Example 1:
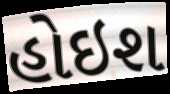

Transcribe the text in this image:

હોઇશ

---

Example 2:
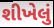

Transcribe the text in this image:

શીખેલું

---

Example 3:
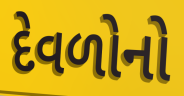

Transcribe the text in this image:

દેવળોનો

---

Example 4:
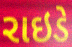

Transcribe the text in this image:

રાઇડે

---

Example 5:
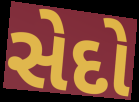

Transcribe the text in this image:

સેદો